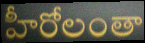
హీరోలంతా